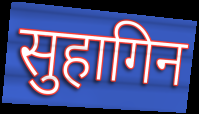
सुहागिन